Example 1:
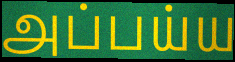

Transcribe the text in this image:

அப்பய்ய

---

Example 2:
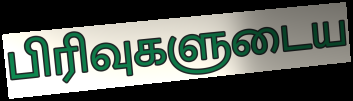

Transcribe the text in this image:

பிரிவுகளுடைய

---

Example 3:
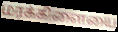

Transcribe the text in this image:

மரக்கிளையை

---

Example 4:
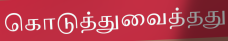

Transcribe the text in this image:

கொடுத்துவைத்தது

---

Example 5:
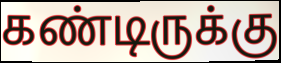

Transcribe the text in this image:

கண்டிருக்கு